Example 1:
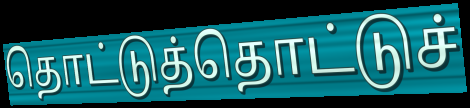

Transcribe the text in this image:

தொட்டுத்தொட்டுச்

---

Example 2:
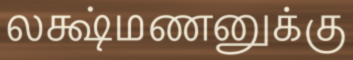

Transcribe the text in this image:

லக்ஷ்மணனுக்கு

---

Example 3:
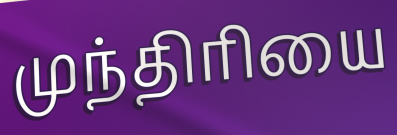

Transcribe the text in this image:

முந்திரியை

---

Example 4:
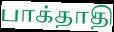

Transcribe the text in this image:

பாக்தாதி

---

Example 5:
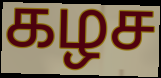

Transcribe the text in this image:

கழச